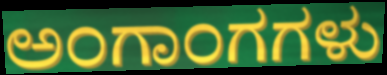
ಅಂಗಾಂಗಗಳು